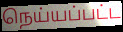
நெய்யப்பட்ட